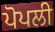
ਪੋਪਲੀ